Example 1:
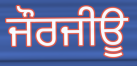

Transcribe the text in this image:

ਜੌਰਜੀਊ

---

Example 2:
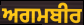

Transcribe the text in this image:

ਅਗਮਬੀਰ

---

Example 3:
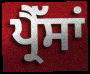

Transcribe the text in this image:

ਪ੍ਰੈੱਸਾਂ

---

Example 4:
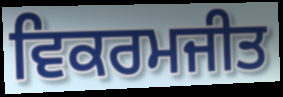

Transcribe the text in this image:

ਵਿਕਰਮਜੀਤ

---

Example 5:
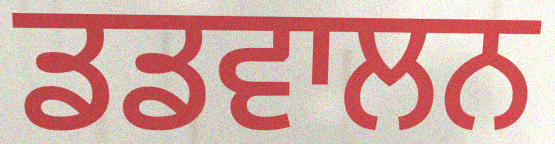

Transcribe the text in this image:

ਡਡਵਾਲਨ